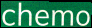
chemo